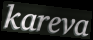
kareva